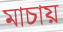
মাচায়